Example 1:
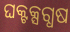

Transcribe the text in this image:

ଘକ୍ଟକ୍ସଗ୍ଧଷ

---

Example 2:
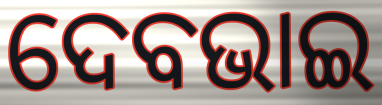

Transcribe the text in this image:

ଦେବଭାଇ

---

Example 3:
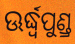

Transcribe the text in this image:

ଊର୍ଦ୍ଧ୍ୱପୁଣ୍ଡ୍ର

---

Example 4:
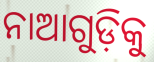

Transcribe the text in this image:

ନାଆଗୁଡ଼ିକୁ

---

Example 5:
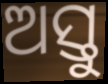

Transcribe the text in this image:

ଅସ୍ତୁ